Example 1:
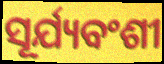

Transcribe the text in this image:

ସୂର୍ଯ୍ୟବଂଶୀ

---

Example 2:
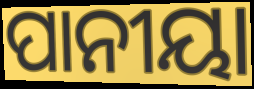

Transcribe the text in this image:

ପାନୀୟା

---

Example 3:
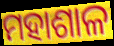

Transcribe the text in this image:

ମହାଶାଳ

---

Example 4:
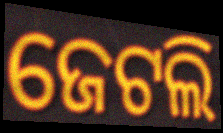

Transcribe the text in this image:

ଜେଟଲି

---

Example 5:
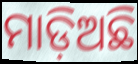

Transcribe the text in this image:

ମାଡ଼ିଅଛି